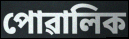
পোৱালিক